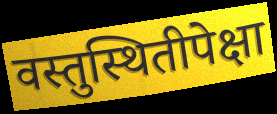
वस्तुस्थितीपेक्षा